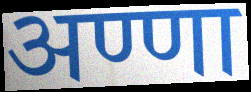
अण्णा